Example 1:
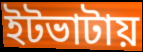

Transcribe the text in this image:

ইটভাটায়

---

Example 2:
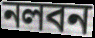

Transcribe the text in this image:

নলবন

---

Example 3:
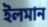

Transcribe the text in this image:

ইলমান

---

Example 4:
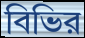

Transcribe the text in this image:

বিভির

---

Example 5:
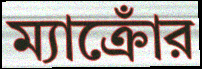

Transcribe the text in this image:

ম্যাক্রোঁর